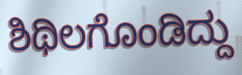
ಶಿಥಿಲಗೊಂಡಿದ್ದು